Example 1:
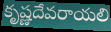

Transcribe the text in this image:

కృష్ణదేవరాయలి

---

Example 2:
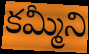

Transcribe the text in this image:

కమ్మీని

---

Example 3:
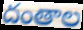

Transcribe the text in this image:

దంతాల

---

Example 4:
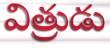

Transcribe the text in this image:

విత్రుడు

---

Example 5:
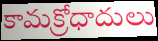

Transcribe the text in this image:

కామక్రోధాదులు